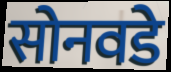
सोनवडे